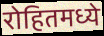
रोहितमध्ये